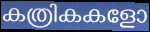
കത്രികകളോ